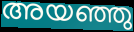
അയഞ്ഞു